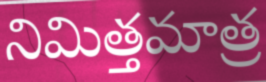
నిమిత్తమాత్ర